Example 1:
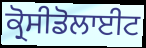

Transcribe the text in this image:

ਕ੍ਰੋਸੀਡੋਲਾਈਟ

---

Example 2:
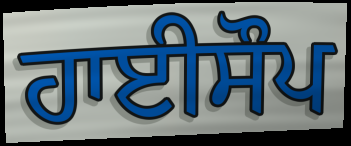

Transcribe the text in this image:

ਹਾਈਸੌਪ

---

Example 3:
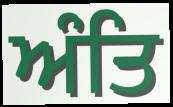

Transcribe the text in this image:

ਅੰਤਿ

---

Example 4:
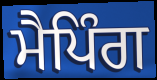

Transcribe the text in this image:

ਮੈਪਿੰਗ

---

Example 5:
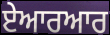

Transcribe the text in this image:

ਏਆਰਆਰ